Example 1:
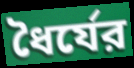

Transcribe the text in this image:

ধৈর্যের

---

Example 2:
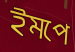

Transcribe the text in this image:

ইমপে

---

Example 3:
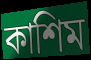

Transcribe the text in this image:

কাশিম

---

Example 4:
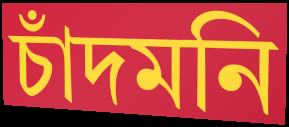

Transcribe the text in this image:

চাঁদমনি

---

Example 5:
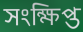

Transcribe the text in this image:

সংক্ষিপ্ত